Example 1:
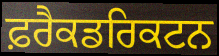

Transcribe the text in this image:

ਫ਼ਰੈਕਡਰਿਕਟਨ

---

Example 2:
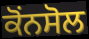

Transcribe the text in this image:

ਕੋਂਨਸੋਲ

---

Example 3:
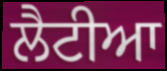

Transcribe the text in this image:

ਲੈਟੀਆ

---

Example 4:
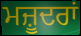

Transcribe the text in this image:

ਮਜ਼ੂਦਰਾਂ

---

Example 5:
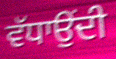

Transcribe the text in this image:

ਵੱਧਾਉਂਦੀ